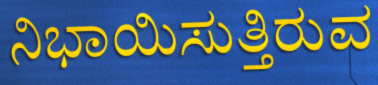
ನಿಭಾಯಿಸುತ್ತಿರುವ